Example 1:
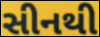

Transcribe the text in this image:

સીનથી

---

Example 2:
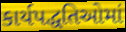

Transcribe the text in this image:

કાર્યપદ્ધતિઓમાં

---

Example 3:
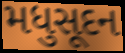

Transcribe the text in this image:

મધુસૂદન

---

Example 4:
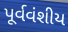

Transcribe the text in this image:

પૂર્વવંશીય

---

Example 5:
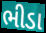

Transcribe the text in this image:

ભીડા